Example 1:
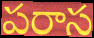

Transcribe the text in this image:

పరాస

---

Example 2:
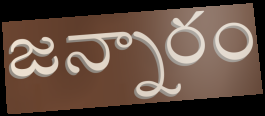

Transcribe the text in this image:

జన్నారం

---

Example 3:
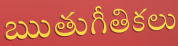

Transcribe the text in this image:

ఋతుగీతికలు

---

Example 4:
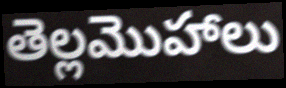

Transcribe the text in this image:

తెల్లమొహాలు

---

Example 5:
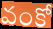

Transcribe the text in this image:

వంకో